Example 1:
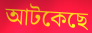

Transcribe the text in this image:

আটকেছে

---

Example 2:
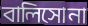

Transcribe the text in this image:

বালিসোনা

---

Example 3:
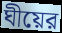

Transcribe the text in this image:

ঘীয়ের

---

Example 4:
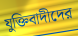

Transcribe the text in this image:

যুক্তিবাদীদের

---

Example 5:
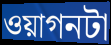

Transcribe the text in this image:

ওয়াগনটা